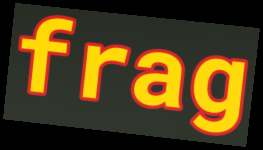
frag